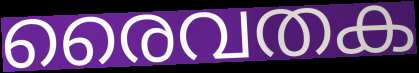
രൈവതക